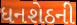
ધનશેઠની